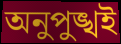
অনুপুঙ্খই